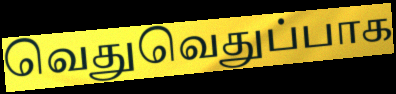
வெதுவெதுப்பாக